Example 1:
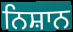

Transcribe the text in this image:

ਨਿਸ਼ਾਨ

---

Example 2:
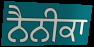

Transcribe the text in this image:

ਨੈਨੀਕਾ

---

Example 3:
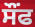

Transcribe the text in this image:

ਸੌਂਫ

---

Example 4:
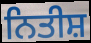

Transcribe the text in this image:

ਨਿਤੀਸ਼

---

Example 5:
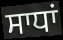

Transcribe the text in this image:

ਸਾਧਾਂ